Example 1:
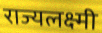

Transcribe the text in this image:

राज्यलक्ष्मी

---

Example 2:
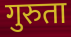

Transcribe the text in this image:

गुरुता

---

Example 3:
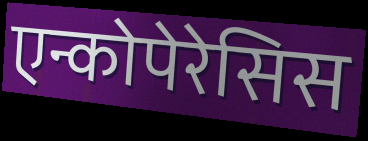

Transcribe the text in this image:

एन्कोपेरेसिस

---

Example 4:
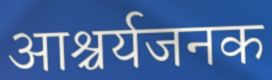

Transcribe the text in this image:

आश्चर्यजनक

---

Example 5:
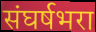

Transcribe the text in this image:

संघर्षभरा